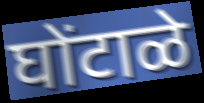
घोंटाळे